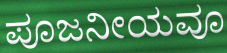
ಪೂಜನೀಯವೂ